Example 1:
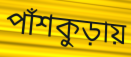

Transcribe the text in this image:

পাঁশকুড়ায়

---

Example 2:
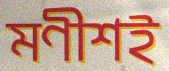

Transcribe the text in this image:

মণীশই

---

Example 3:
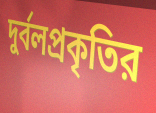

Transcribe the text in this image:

দুর্বলপ্রকৃতির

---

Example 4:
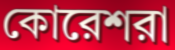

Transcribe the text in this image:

কোরেশরা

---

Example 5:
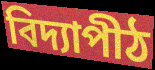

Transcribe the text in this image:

বিদ্যাপীঠ